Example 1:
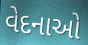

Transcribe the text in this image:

વેદનાઓ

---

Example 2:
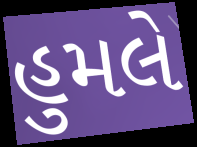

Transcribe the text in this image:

હુમલે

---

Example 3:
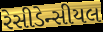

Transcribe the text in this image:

રેસીડેન્સીયલ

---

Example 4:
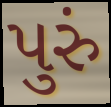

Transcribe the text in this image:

પુરું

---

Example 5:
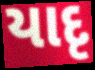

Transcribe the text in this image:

યાદૃ